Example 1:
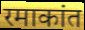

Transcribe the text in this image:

रमाकांत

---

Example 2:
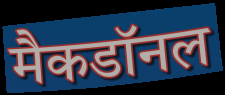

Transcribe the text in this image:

मैकडॉनल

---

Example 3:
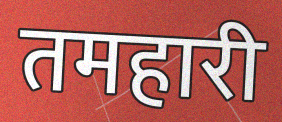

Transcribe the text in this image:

तमहारी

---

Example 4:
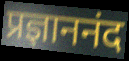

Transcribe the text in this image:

प्रज्ञाननंद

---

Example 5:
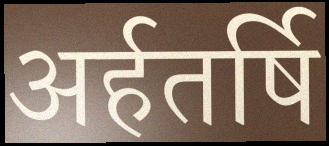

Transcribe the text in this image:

अर्हतर्षि